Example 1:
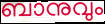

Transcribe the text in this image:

ബാനുവും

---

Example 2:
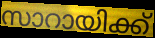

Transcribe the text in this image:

സാറായിക്ക്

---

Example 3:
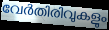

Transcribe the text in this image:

വേർതിരിവുകളും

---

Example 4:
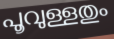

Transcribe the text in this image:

പൂവുള്ളതും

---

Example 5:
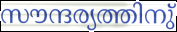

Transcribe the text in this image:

സൗന്ദര്യത്തിനു്